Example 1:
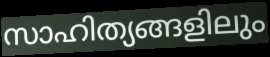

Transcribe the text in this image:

സാഹിത്യങ്ങളിലും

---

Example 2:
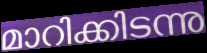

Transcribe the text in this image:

മാറിക്കിടന്നു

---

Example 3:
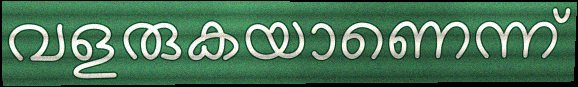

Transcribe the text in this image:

വളരുകയാണെന്ന്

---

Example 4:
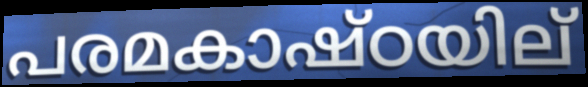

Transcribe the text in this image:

പരമകാഷ്ഠയില്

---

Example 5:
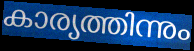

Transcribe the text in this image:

കാര്യത്തിന്നും